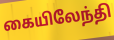
கையிலேந்தி